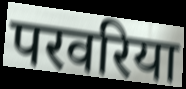
परवरिया